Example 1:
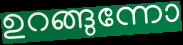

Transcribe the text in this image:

ഉറങ്ങുന്നോ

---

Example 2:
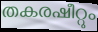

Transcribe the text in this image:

തകരഷീറ്റും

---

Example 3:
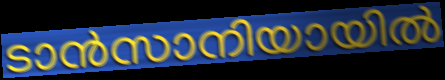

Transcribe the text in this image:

ടാൻസാനിയായിൽ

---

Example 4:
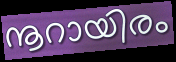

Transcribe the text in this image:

നൂറായിരം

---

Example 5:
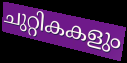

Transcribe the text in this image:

ചുറ്റികകളും